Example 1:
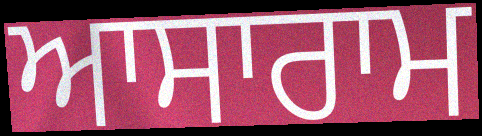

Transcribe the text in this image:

ਆਸਾਰਾਮ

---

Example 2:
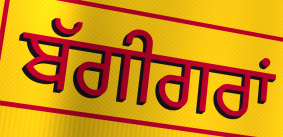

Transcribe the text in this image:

ਬੱਗੀਗਰਾਂ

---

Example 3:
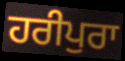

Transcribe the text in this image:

ਹਰੀਪੁਰਾ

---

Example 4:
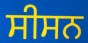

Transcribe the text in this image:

ਸੀਸਨ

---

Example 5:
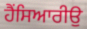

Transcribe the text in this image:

ਹੈਂਸਿਆਰੀਉ